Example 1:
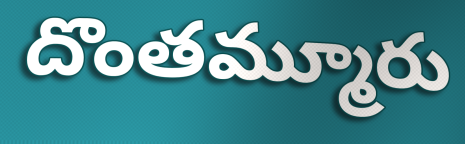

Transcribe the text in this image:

దొంతమ్మూరు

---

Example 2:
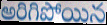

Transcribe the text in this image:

అరిగిపోయిన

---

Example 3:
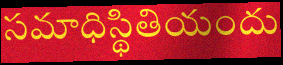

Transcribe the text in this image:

సమాధిస్థితియందు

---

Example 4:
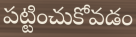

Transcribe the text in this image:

పట్టించుకోవడం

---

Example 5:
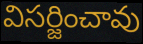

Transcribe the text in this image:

విసర్జించావు